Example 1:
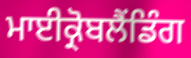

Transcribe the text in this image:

ਮਾਈਕ੍ਰੋਬਲੈਂਡਿੰਗ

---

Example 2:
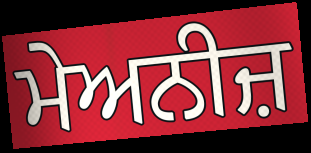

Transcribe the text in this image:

ਮੇਅਨੀਜ਼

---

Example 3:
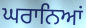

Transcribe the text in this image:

ਘਰਾਨਿਆਂ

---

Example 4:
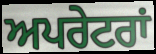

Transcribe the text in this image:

ਅਪਰੇਟਰਾਂ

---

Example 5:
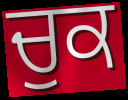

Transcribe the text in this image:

ਚੁਕ